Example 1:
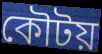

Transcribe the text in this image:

কৌটয়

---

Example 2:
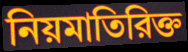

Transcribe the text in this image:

নিয়মাতিরিক্ত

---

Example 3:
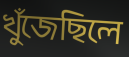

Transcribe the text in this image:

খুঁজেছিলে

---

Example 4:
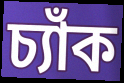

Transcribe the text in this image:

চ্যাঁক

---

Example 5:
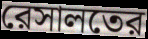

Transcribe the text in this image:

রেসালতের